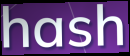
hash